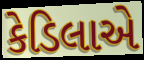
કેડિલાએ